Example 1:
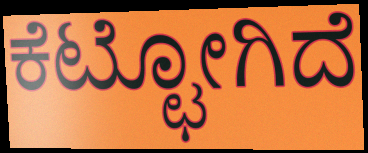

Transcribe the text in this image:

ಕೆಟ್ಟೋಗಿದೆ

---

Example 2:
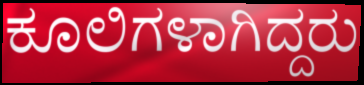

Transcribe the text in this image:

ಕೂಲಿಗಳಾಗಿದ್ದರು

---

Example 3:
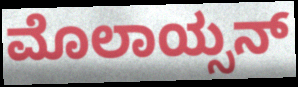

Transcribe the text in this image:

ಮೊಲಾಯ್ಸನ್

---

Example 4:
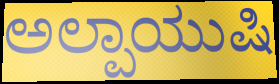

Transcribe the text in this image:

ಅಲ್ಪಾಯುಷಿ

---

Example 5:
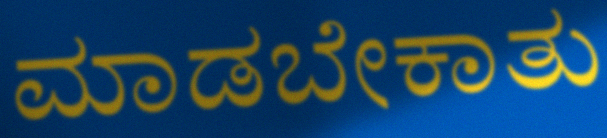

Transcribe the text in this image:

ಮಾಡಬೇಕಾತು